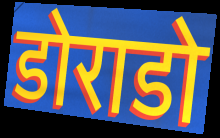
डोराडो